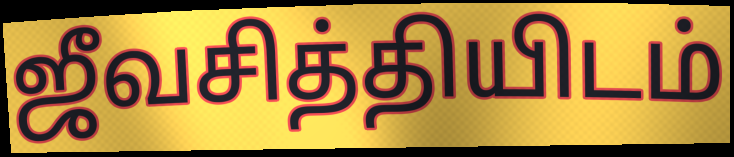
ஜீவசித்தியிடம்